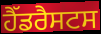
ਹੈੱਡਰੈਸਟਸ